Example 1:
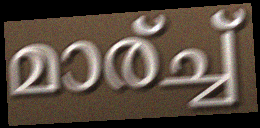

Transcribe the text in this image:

മാര്ച്ച്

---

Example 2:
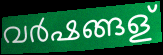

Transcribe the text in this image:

വർഷങ്ങള്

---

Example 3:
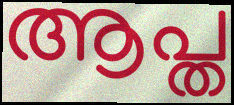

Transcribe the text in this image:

ആപ്ത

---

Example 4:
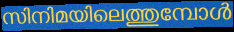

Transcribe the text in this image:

സിനിമയിലെത്തുമ്പോൾ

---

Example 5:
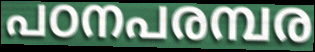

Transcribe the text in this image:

പഠനപരമ്പര